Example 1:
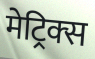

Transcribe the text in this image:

मेट्रिक्‍स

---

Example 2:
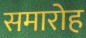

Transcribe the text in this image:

समारोह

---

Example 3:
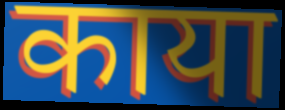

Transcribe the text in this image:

काया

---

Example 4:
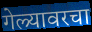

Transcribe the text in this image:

गेल्यावरचा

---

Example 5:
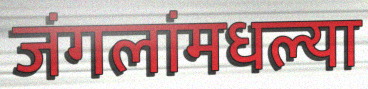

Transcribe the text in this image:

जंगलांमधल्या